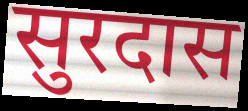
सुरदास